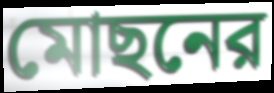
মোছনের